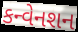
કન્વેનશન